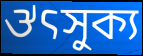
ঔৎসুক্য